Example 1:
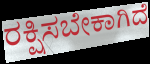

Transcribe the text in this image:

ರಕ್ಷಿಸಬೇಕಾಗಿದೆ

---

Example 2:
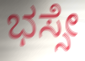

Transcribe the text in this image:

ಭಸ್ಸೇ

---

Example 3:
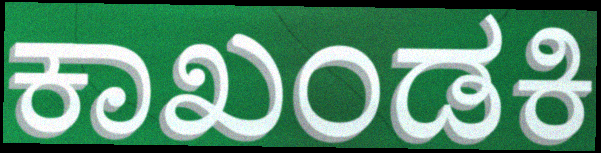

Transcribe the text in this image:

ಕಾಖಂಡಕಿ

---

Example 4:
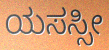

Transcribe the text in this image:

ಯಸಸ್ಸೀ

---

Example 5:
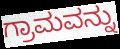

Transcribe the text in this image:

ಗ್ರಾಮವನ್ನು